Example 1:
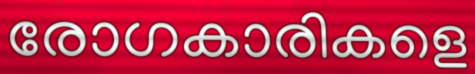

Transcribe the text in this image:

രോഗകാരികളെ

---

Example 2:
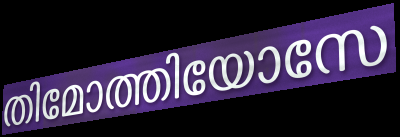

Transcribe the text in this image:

തിമോത്തിയോസേ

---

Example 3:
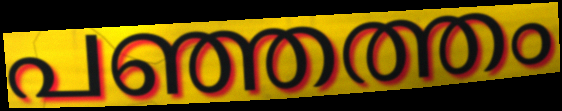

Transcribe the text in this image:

പഞ്ഞത്തം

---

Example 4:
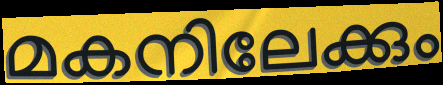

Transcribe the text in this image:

മകനിലേക്കും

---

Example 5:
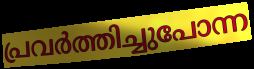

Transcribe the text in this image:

പ്രവർത്തിച്ചുപോന്ന